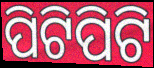
ପିଟିପିଟି